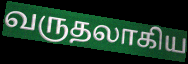
வருதலாகிய